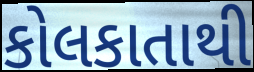
કોલકાતાથી